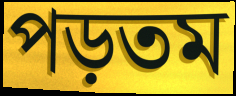
পড়তম